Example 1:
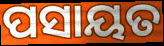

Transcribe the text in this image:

ପସାୟତ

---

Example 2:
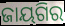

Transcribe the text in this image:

ଜାୟଗିର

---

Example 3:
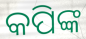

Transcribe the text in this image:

କପିଙ୍କ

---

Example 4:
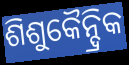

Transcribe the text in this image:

ଶିଶୁକୈନ୍ଦ୍ରିକ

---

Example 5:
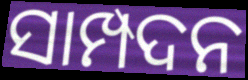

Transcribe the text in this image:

ସାମ୍ପଦନ